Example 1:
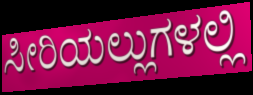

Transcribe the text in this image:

ಸೀರಿಯಲ್ಲುಗಳಲ್ಲಿ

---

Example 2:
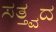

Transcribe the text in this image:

ಸತ್ತ್ವದ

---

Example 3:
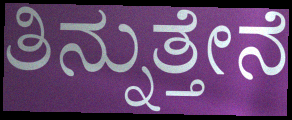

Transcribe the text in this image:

ತಿನ್ನುತ್ತೇನೆ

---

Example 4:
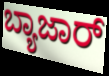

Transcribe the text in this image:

ಬ್ಯಾಜಾರ್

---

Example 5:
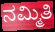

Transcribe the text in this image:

ನಮ್ಮಿತಿ